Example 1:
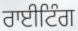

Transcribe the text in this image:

ਰਾਈਟਿੰਗ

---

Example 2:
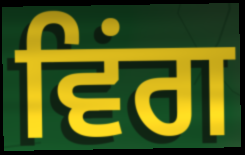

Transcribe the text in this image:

ਵਿਂਗ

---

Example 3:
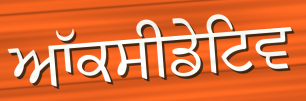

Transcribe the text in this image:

ਆੱਕਸੀਡੇਟਿਵ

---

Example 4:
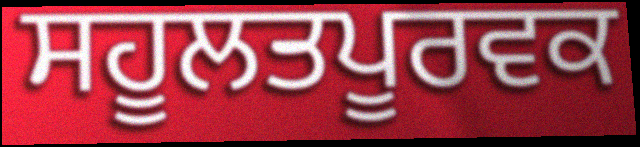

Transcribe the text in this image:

ਸਹੂਲਤਪੂਰਵਕ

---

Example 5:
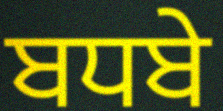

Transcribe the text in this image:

ਬਧਬੇ